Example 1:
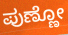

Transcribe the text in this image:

ಪುಣ್ಣೋ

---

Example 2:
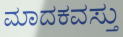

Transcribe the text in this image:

ಮಾದಕವಸ್ತು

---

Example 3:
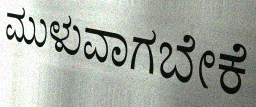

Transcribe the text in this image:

ಮುಳುವಾಗಬೇಕೆ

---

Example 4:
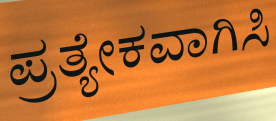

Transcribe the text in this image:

ಪ್ರತ್ಯೇಕವಾಗಿಸಿ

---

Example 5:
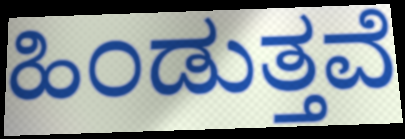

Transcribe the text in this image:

ಹಿಂಡುತ್ತವೆ